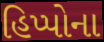
હિપ્પોના